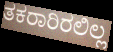
ತಕರಾರಿರಲಿಲ್ಲ